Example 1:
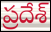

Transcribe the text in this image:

ప్రదేశ్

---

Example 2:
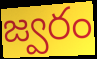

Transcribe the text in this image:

జ్వరం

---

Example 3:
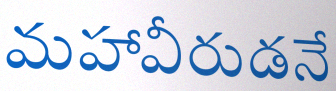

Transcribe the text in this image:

మహావీరుడనే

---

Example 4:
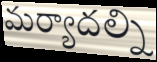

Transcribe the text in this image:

మర్యాదల్ని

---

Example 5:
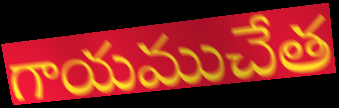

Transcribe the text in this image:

గాయముచేత